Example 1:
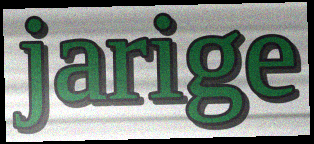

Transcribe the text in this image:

jarige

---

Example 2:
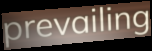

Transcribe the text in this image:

prevailing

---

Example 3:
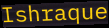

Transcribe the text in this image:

Ishraque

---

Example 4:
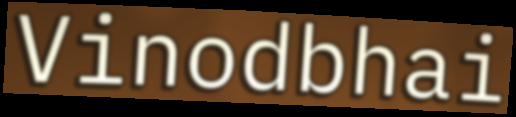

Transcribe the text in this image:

Vinodbhai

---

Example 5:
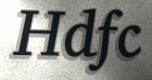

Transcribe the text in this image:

Hdfc